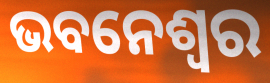
ଭବନେଶ୍ୱର